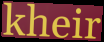
kheir